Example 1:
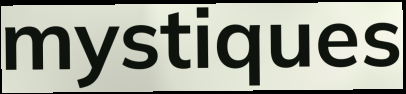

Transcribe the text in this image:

mystiques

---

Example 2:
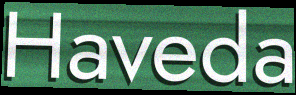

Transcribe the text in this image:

Haveda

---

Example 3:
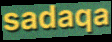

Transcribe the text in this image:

sadaqa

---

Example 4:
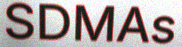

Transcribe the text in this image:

SDMAs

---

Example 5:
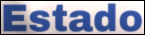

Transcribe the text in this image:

Estado